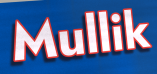
Mullik